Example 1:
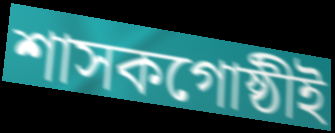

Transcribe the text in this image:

শাসকগোষ্ঠীই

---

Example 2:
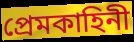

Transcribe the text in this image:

প্রেমকাহিনী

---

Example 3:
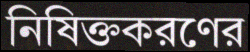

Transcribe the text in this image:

নিষিক্তকরণের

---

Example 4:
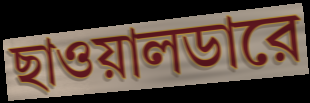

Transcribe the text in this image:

ছাওয়ালডারে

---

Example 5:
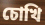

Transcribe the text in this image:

চোখি